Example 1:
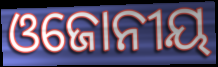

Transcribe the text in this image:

ଓଜୋନୀୟ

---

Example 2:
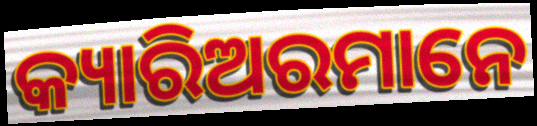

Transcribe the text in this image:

କ୍ୟାରିଅରମାନେ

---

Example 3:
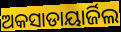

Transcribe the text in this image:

ଅକସାଡାୟାର୍ଜିଲ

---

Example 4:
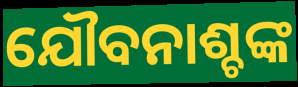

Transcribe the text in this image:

ଯୌବନାଶ୍ଚଙ୍କ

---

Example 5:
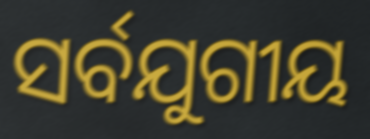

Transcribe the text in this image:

ସର୍ବଯୁଗୀୟ